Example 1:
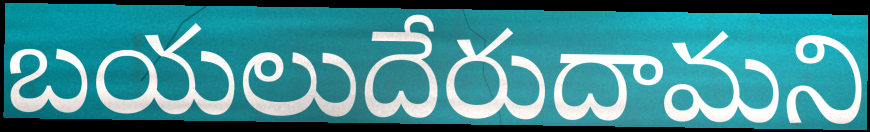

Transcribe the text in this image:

బయలుదేరుదామని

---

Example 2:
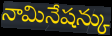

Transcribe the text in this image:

నామినేషన్కు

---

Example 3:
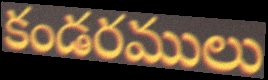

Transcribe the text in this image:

కండరములు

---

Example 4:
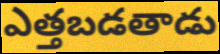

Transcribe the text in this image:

ఎత్తబడతాడు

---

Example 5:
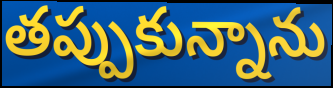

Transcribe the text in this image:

తప్పుకున్నాను